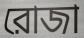
রোজা